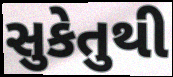
સુકેતુથી